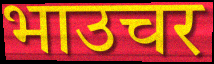
भाउचर